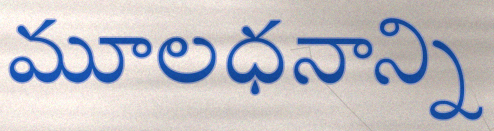
మూలధనాన్ని